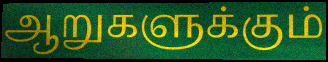
ஆறுகளுக்கும்